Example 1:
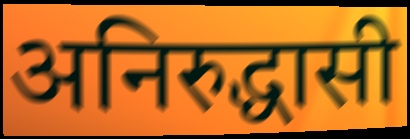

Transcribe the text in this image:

अनिरुद्धासी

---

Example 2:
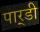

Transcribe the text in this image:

पार्डी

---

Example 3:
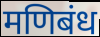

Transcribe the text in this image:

मणिबंध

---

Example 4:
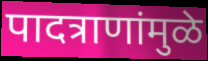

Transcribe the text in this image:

पादत्राणांमुळे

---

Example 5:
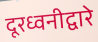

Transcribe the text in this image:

दूरध्वनीद्वारे